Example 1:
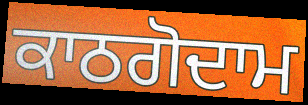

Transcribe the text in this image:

ਕਾਠਗੋਦਾਮ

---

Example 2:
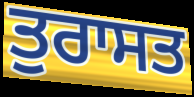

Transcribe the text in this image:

ਤੁਰਾਸਤ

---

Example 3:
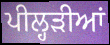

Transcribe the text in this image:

ਪੀਲ੍ਹੜੀਆਂ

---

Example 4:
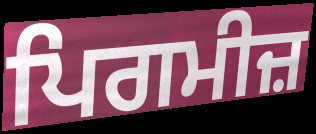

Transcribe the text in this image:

ਪਿਗਮੀਜ਼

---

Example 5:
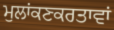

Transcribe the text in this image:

ਮੁਲਾਂਕਣਕਰਤਾਵਾਂ